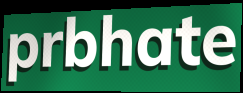
prbhate